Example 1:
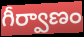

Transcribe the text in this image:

గీర్వాణం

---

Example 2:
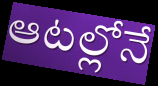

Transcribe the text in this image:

ఆటల్లోనే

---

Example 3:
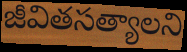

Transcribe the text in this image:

జీవితసత్యాలని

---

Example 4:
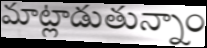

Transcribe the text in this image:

మాట్లాడుతున్నాం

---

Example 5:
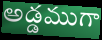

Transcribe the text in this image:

అడ్డముగా